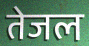
तेजल